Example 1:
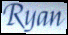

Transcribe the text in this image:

Ryan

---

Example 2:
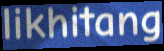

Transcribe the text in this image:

likhitang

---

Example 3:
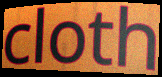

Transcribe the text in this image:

cloth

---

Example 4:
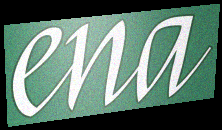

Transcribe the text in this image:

ena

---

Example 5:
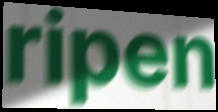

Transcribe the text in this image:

ripen